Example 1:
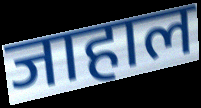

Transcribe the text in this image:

जाहाल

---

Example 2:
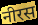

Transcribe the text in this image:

नीरस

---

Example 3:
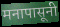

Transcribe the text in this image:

मनापासूनी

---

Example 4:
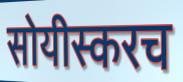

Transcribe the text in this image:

सोयीस्करच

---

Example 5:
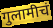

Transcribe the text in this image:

गुलामीचं